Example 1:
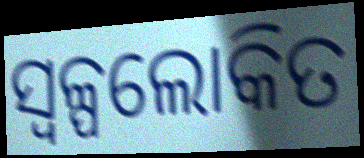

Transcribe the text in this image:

ସ୍ୱଳ୍ପଲୋକିତ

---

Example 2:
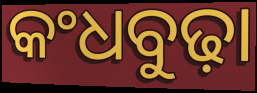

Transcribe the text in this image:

କଂଧବୁଢ଼ା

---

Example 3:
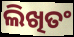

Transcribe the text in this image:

ଲିଖିତଂ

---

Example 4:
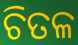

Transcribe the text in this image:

ଚିତଳ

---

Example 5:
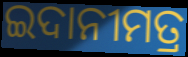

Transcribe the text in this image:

ଇଦାନୀମତ୍ର